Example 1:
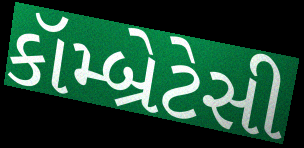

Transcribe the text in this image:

કૉમ્બ્રેટેસી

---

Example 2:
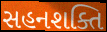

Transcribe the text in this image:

સહનશક્તિ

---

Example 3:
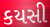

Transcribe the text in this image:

કયસી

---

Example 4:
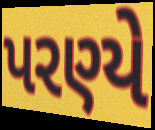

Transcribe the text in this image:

પરણ્યે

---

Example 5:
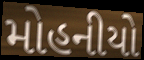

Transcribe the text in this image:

મોહનીયો